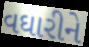
વઘારીને